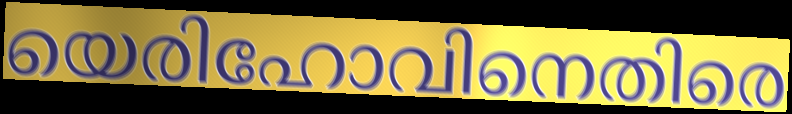
യെരിഹോവിനെതിരെ